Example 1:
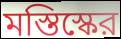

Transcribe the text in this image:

মস্তিস্কের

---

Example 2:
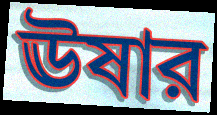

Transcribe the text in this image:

ঊষার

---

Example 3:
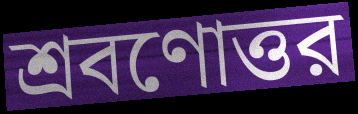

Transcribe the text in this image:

শ্রবণোত্তর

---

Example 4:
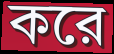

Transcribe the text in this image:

করে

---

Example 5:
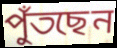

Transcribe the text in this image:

পুঁতছেন